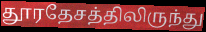
தூரதேசத்திலிருந்து